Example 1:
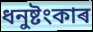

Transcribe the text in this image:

ধনুষ্টংকাৰ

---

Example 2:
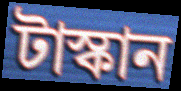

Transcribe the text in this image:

টাস্কান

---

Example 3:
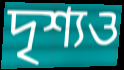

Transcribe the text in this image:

দৃশ্যও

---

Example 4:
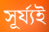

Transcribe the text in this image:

সূৰ্য্যই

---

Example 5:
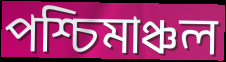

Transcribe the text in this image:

পশ্চিমাঞ্চল